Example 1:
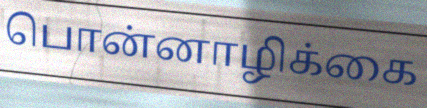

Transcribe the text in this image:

பொன்னாழிக்கை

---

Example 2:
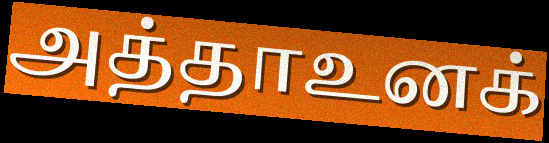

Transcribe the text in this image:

அத்தாஉனக்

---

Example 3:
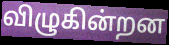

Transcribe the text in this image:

விழுகின்றன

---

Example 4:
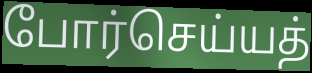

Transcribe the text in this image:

போர்செய்யத்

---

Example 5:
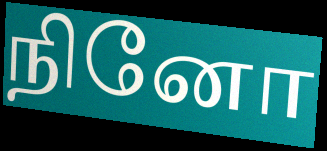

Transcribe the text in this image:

நினோ